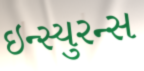
ઇન્સ્યુરન્સ